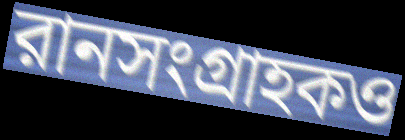
রানসংগ্রাহকও